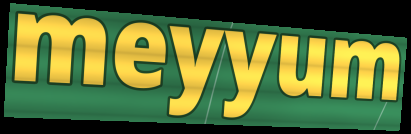
meyyum